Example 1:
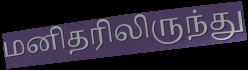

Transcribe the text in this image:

மனிதரிலிருந்து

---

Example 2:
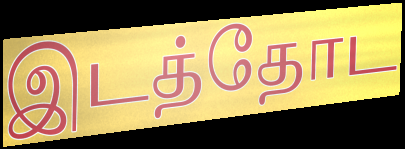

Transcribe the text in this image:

இடத்தோட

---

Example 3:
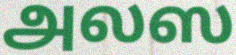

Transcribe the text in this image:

அலஸ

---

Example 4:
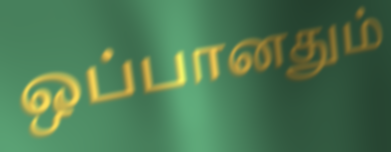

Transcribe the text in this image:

ஒப்பானதும்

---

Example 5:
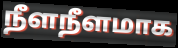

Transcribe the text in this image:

நீளநீளமாக